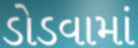
ડોડવામાં